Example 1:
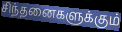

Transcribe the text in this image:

சிந்தனைகளுக்கும்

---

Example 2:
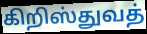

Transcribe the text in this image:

கிறிஸ்துவத்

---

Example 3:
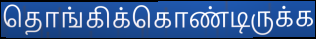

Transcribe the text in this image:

தொங்கிக்கொண்டிருக்க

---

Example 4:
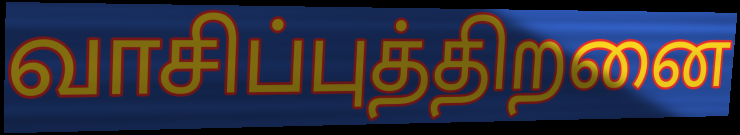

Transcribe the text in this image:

வாசிப்புத்திறனை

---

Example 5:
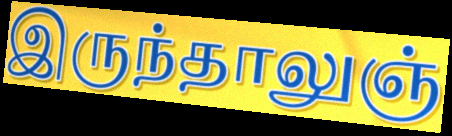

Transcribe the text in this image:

இருந்தாலுஞ்